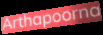
Arthapoorna